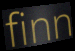
finn